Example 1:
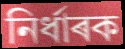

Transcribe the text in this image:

নিৰ্ধাৰক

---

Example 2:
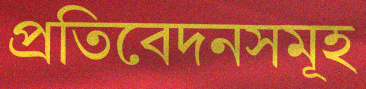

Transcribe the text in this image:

প্ৰতিবেদনসমূহ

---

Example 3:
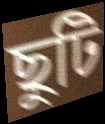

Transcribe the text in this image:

ছুটি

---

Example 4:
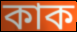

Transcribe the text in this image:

কাক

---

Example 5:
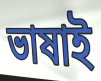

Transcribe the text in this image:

ভাষাই